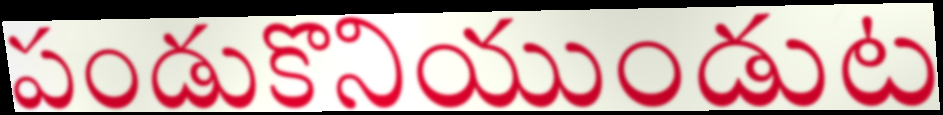
పండుకొనియుండుట